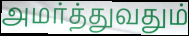
அமர்த்துவதும்